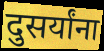
दुसर्यांना